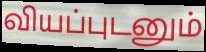
வியப்புடனும்